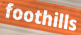
foothills